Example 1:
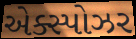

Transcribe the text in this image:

એક્સ્પોઝર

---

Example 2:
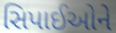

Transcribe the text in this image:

સિપાઈઓને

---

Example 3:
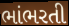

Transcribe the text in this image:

ભાંભરતી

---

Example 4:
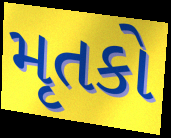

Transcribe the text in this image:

મૃતકો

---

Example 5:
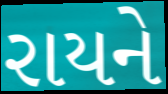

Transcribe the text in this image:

રાયને